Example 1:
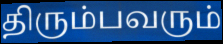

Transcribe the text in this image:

திரும்பவரும்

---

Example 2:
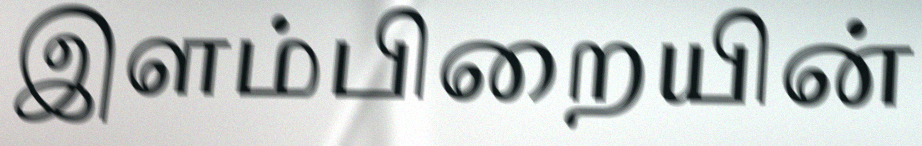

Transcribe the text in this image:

இளம்பிறையின்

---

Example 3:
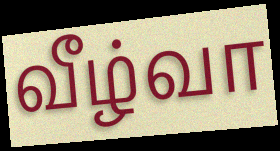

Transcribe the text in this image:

வீழ்வா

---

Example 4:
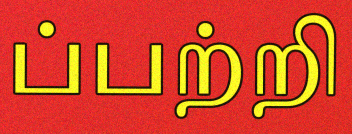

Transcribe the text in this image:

ப்பற்றி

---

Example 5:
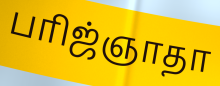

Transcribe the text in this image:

பரிஜ்ஞாதா